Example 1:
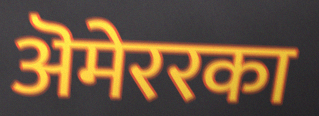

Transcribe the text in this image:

ऄमेररका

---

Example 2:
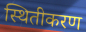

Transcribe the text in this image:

स्थितीकरण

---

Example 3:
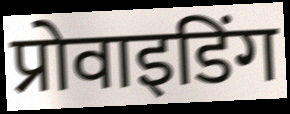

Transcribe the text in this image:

प्रोवाइडिंग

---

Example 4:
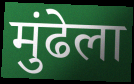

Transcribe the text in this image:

मुंढेला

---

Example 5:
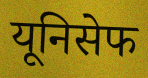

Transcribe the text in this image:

यूनिसेफ